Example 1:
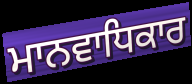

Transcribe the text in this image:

ਮਾਨਵਾਧਿਕਾਰ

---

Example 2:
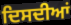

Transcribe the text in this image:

ਦਿਸਦੀਆਂ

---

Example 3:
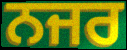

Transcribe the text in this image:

ਨਜਰ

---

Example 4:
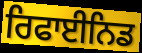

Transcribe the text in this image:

ਰਿਫਾਈਨਿਡ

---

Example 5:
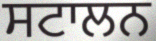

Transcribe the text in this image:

ਸਟਾਲਨ